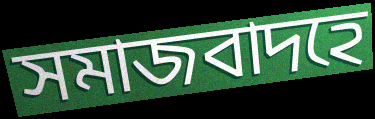
সমাজবাদহে